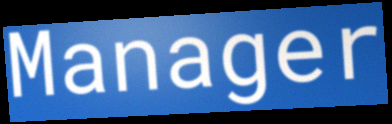
Manager